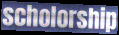
scholorship